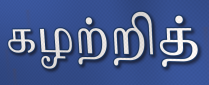
கழற்றித்